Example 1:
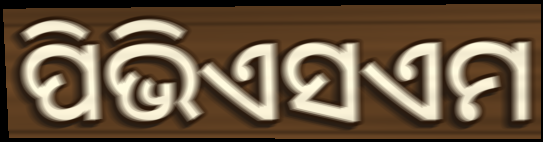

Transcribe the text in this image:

ପିଭିଏସଏମ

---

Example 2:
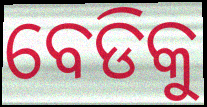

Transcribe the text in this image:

ବେଡିକୁ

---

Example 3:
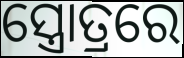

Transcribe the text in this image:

ସ୍ତ୍ରୋତ୍ରରେ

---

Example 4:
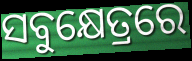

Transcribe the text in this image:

ସବୁକ୍ଷେତ୍ରରେ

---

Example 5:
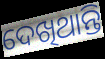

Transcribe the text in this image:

ଦେଖିଥାନ୍ତି